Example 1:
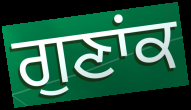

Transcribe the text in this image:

ਗੁਣਾਂਕ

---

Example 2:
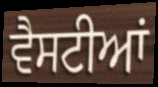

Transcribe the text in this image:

ਵੈਸਟੀਆਂ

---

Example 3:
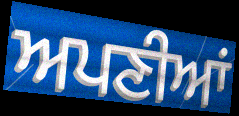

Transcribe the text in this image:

ਅਪਣੀਆਂ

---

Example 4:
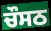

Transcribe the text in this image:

ਚੌਸਠ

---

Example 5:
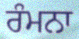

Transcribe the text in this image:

ਰੰਮਨਾ